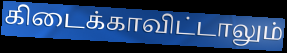
கிடைக்காவிட்டாலும்